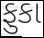
ફુકા